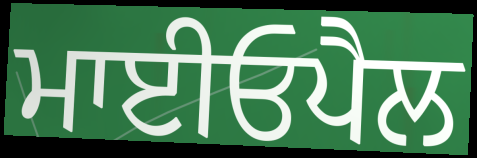
ਮਾਈਓਪੈਲ